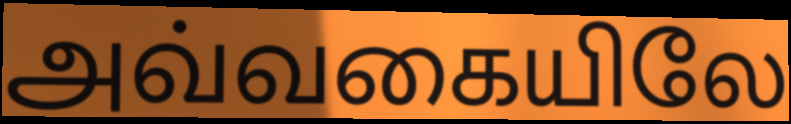
அவ்வகையிலே